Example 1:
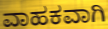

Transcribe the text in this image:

ವಾಹಕವಾಗಿ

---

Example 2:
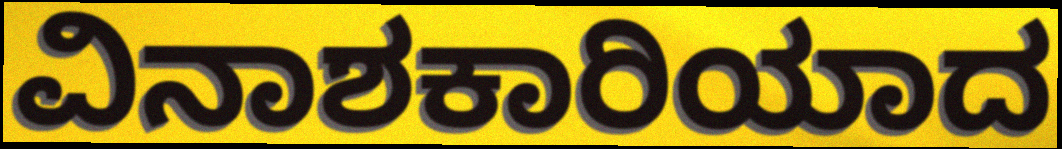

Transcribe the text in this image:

ವಿನಾಶಕಾರಿಯಾದ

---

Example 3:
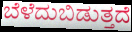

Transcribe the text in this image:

ಬೆಳೆದುಬಿಡುತ್ತದೆ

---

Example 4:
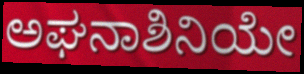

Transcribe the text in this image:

ಅಘನಾಶಿನಿಯೇ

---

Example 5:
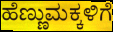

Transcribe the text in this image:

ಹೆಣ್ಣುಮಕ್ಕಳಿಗೆ